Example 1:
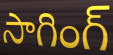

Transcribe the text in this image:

సాగింగ్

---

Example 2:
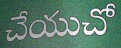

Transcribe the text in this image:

చేయుచో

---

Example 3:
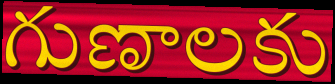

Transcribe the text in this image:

గుణాలకు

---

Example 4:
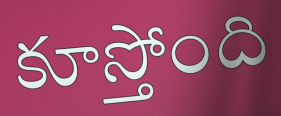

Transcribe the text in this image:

కూస్తోంది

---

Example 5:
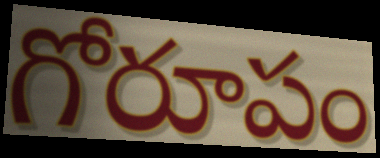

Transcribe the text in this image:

గోరూపం